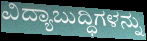
ವಿದ್ಯಾಬುದ್ಧಿಗಳನ್ನು